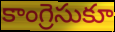
కాంగ్రెసుకూ